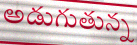
అడుగుతున్న